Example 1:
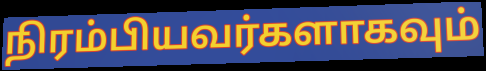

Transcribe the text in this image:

நிரம்பியவர்களாகவும்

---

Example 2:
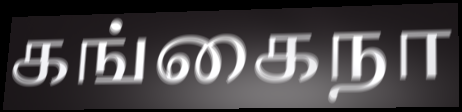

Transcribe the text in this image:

கங்கைநா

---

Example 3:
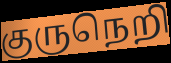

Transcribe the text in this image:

குருநெறி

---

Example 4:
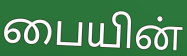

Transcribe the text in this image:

பையின்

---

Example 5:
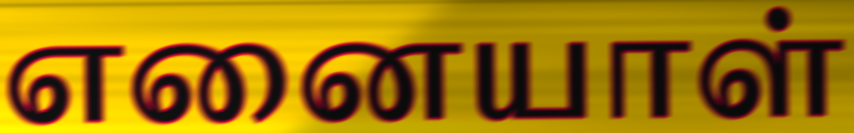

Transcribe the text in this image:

எனையாள்